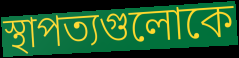
স্থাপত্যগুলোকে